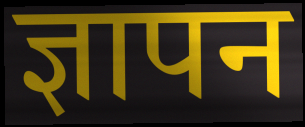
ज्ञापन